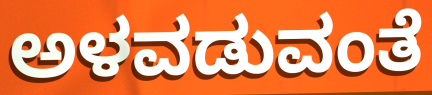
ಅಳವಡುವಂತೆ